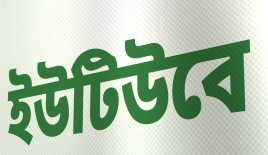
ইউটিউবে